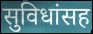
सुविधांसह